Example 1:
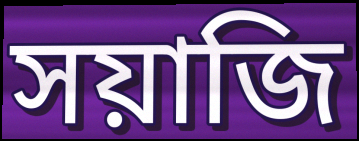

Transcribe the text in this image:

সয়াজি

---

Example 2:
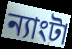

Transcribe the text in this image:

ন্যাংটা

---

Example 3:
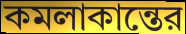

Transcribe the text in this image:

কমলাকান্তের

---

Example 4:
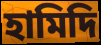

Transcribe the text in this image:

হামিদি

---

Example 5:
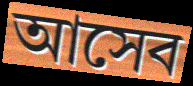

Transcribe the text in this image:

আসেব